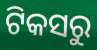
ଟିକସରୁ